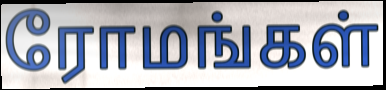
ரோமங்கள்